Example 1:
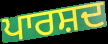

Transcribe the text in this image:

ਪਾਰਸ਼ਦ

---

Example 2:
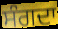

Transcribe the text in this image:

ਸੰਗਦਾ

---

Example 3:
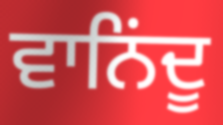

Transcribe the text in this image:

ਵਾਨਿਂਦੂ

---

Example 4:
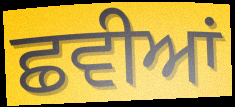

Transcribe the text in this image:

ਛਵੀਆਂ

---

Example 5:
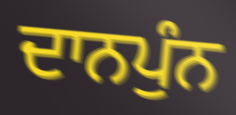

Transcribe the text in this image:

ਦਾਨਪੁੰਨ